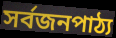
সর্বজনপাঠ্য